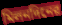
মিলনদিনের